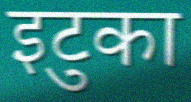
इटुका